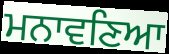
ਮਨਾਵਣਿਆ